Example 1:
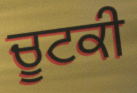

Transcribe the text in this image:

ਚੂਟਕੀ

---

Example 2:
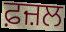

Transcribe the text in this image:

ਫ਼ਜ਼ਲ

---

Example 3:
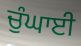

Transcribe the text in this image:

ਚੁੰਘਾਈ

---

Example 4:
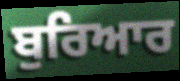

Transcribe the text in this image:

ਬੁਰਿਆਰ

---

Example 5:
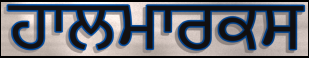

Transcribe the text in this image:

ਹਾਲਮਾਰਕਸ